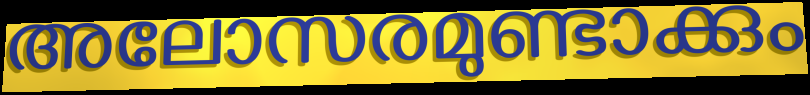
അലോസരമുണ്ടാക്കും